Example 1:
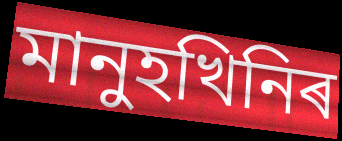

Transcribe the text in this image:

মানুহখিনিৰ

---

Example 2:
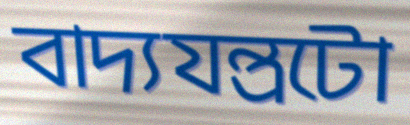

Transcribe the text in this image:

বাদ্যযন্ত্ৰটো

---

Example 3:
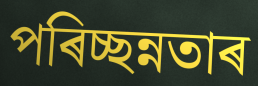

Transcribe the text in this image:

পৰিচ্ছন্নতাৰ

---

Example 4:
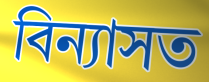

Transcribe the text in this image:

বিন্যাসত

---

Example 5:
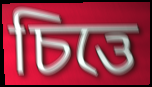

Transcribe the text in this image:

চিত্তে